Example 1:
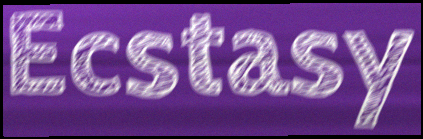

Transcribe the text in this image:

Ecstasy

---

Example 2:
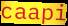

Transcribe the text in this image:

caapi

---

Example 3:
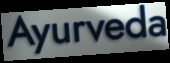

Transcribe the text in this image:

Ayurveda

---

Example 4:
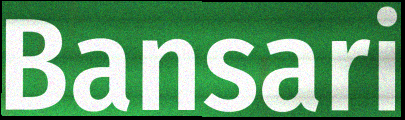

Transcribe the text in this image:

Bansari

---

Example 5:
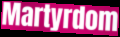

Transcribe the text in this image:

Martyrdom